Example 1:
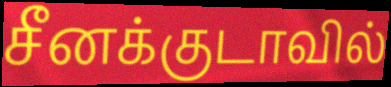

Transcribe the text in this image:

சீனக்குடாவில்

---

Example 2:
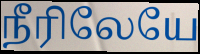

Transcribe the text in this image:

நீரிலேயே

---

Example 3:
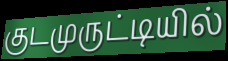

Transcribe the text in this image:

குடமுருட்டியில்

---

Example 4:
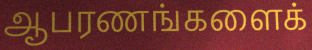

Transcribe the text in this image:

ஆபரணங்களைக்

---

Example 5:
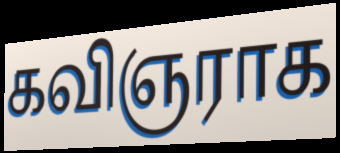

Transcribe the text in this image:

கவிஞராக